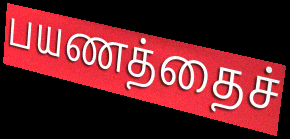
பயணத்தைச்